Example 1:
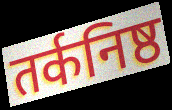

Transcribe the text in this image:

तर्कनिष्ठ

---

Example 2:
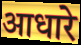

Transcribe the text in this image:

आधारे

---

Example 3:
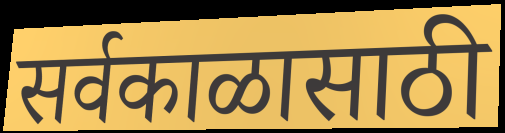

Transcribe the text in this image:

सर्वकाळासाठी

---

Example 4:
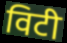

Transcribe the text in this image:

विटी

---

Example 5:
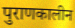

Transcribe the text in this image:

पुराणकालीन